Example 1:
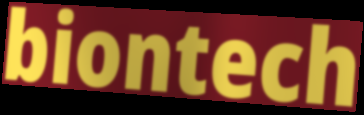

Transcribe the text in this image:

biontech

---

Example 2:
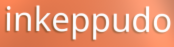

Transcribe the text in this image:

inkeppudo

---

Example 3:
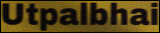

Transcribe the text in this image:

Utpalbhai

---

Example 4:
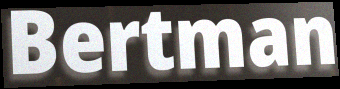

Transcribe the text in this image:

Bertman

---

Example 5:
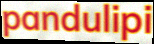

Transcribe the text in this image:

pandulipi